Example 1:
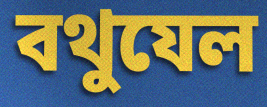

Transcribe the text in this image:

বথুযেল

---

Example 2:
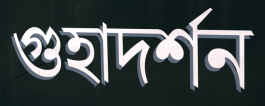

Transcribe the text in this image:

গুহাদর্শন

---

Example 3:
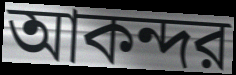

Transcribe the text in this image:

আকন্দর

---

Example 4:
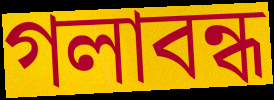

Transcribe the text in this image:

গলাবন্ধ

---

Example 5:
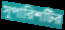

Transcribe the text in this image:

সুপারিশটির